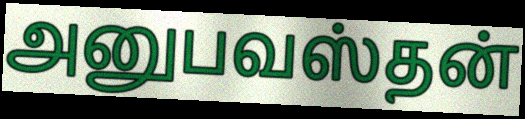
அனுபவஸ்தன்